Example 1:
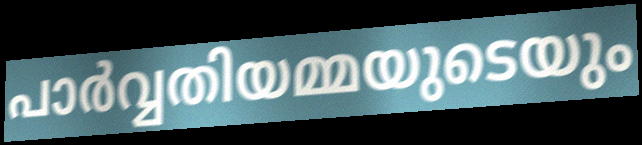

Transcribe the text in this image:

പാർവ്വതിയമ്മയുടെയും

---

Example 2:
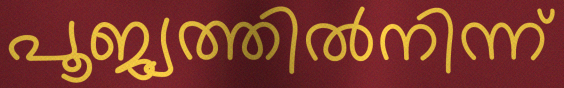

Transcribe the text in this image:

പൂജ്യത്തിൽനിന്ന്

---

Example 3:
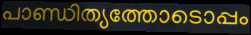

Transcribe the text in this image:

പാണ്ഡിത്യത്തോടൊപ്പം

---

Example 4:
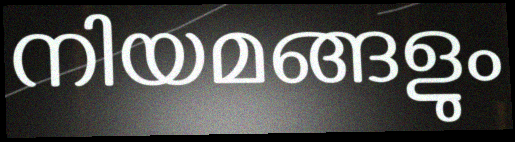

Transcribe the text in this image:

നിയമങ്ങളും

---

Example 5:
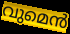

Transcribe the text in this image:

വുമെൻ